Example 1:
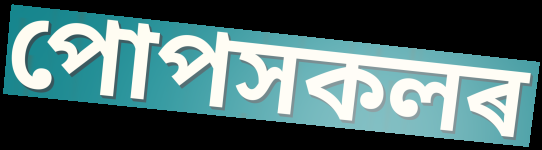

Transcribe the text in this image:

পোপসকলৰ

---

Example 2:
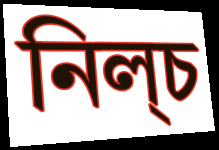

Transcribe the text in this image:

নিল্চ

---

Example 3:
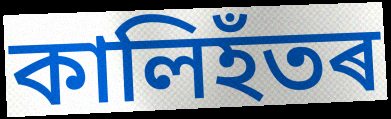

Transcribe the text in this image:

কালিহঁতৰ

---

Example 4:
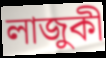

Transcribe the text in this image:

লাজুকী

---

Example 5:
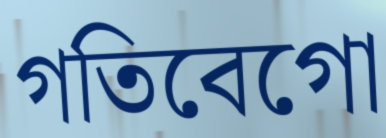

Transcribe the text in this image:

গতিবেগো